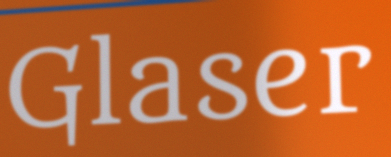
Glaser